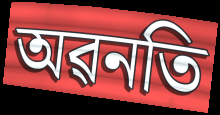
অৱনতি